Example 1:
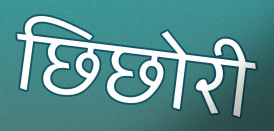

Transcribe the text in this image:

छिछोरी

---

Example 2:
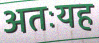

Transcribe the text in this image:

अतःयह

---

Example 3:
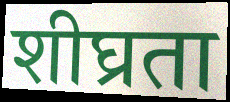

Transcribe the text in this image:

शीघ्रता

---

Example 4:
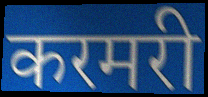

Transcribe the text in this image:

करमरी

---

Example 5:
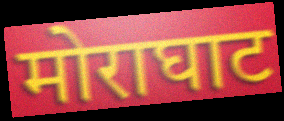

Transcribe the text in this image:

मोराघाट